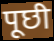
पूछी